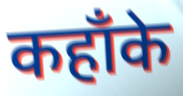
कहाँके